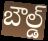
బౌల్డ్